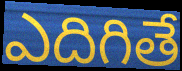
ఎదిగితే